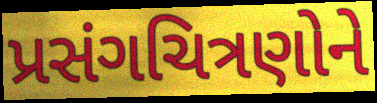
પ્રસંગચિત્રણોને